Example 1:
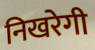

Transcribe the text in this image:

निखरेगी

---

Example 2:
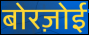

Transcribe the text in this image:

बोरज़ोई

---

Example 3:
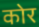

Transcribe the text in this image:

कोर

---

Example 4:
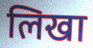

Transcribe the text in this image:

लिखा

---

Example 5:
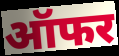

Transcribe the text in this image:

ऑफर